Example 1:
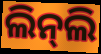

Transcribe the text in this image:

ଲିନ୍‌ଲି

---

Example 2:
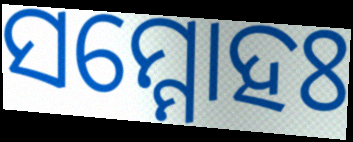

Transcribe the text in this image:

ସମ୍ମୋହଃ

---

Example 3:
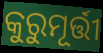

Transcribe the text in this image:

କୁରୁମୂର୍ତ୍ତୀ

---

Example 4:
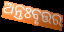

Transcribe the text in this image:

ଅନ୍ତଃବୃତ୍ତର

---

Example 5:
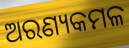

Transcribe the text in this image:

ଅରଣ୍ୟକମଳ